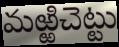
మఱ్ఱిచెట్టు